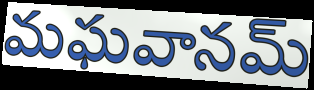
మఘవానమ్